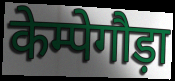
केम्पेगौड़ा